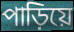
পাড়িয়ে